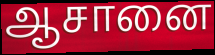
ஆசானை